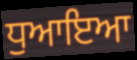
ਧੁਆਇਆ